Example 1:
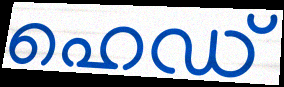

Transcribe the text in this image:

ഹെഡ്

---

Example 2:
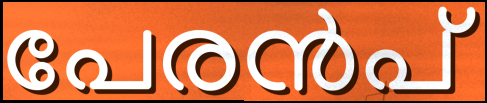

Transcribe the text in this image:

പേരൻപ്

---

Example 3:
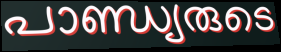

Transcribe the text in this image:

പാണ്ഡ്യരുടെ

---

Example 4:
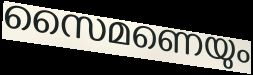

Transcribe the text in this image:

സൈമണെയും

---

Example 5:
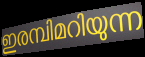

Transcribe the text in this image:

ഇരമ്പിമറിയുന്ന